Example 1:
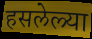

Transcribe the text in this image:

हसलेल्या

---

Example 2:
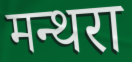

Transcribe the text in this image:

मन्थरा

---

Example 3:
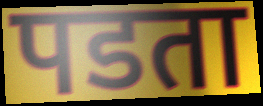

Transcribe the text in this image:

पडता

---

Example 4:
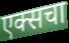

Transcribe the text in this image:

एक्सचा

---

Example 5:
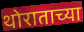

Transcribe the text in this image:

थोराताच्या